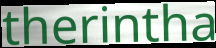
therintha